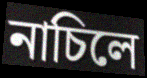
নাচিলে